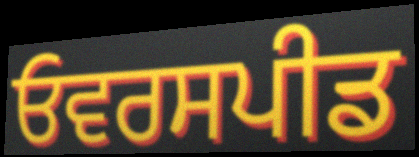
ਓਵਰਸਪੀਡ